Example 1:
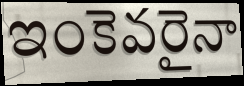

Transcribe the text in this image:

ఇంకెవరైనా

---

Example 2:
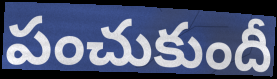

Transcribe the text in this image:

పంచుకుందీ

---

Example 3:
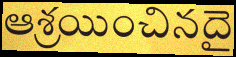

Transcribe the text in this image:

ఆశ్రయించినదై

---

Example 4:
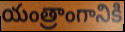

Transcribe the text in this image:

యంత్రాంగానికి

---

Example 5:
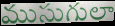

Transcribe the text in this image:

ముసుగులా